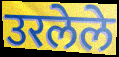
उरलेले